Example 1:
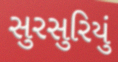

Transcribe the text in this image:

સુરસુરિયું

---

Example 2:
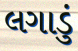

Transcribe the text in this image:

લગાડું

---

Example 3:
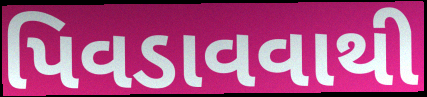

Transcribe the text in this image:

પિવડાવવાથી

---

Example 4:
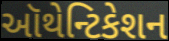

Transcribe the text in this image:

ઑથેન્ટિકેશન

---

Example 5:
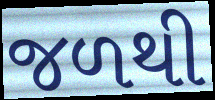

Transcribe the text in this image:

જળથી